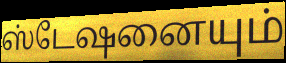
ஸ்டேஷனையும்